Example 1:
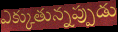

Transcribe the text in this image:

ఎక్కుతున్నప్పుడు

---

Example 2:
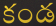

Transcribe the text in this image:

కండ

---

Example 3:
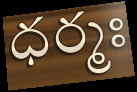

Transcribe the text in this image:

ధర్మః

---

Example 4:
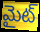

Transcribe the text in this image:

మైట్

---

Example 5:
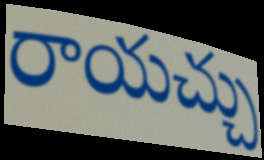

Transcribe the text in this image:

రాయచ్చు